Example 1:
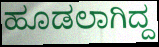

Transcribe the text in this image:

ಹೂಡಲಾಗಿದ್ದ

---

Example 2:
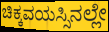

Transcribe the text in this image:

ಚಿಕ್ಕವಯಸ್ಸಿನಲ್ಲೇ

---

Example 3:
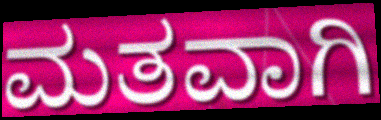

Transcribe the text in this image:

ಮತವಾಗಿ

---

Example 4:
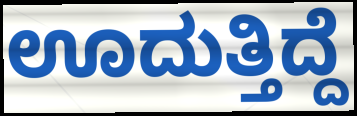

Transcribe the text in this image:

ಊದುತ್ತಿದ್ದೆ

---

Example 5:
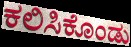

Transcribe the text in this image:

ಕಲಿಸಿಕೊಂಡು